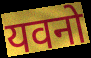
यवनो